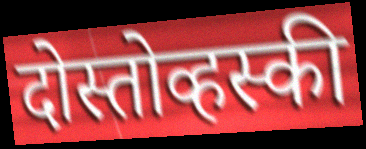
दोस्तोव्हस्की